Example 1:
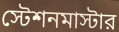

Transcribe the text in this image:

স্টেশনমাস্টার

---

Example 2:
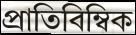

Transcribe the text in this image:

প্রাতিবিম্বিক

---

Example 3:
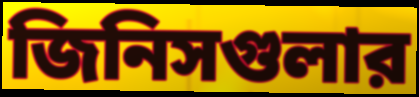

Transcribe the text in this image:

জিনিসগুলার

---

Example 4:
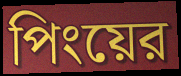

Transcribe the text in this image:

পিংয়ের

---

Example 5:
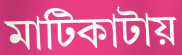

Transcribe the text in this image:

মাটিকাটায়